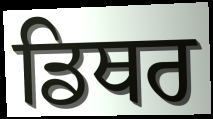
ਡਿਥਰ